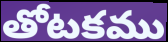
తోటకము